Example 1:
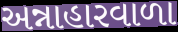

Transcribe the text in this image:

અન્નાહારવાળા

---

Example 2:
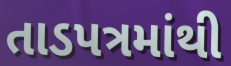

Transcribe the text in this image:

તાડપત્રમાંથી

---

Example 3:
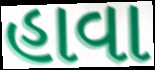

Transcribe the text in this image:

હાવા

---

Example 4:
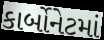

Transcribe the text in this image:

કાર્બોનેટમાં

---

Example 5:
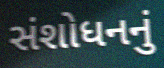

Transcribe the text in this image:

સંશોધનનું